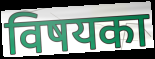
विषयका